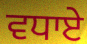
ਵਧਾਏ